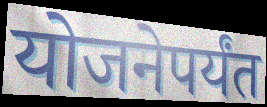
योजनेपर्यंत